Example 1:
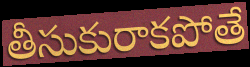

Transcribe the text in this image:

తీసుకురాకపోతే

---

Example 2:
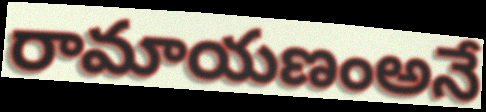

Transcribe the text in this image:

రామాయణంఅనే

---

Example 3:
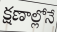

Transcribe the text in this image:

క్షణాల్లోనే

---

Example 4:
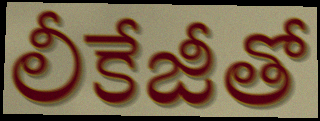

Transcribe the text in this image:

లీకేజీతో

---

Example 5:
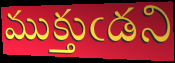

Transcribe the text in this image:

ముక్తుఁడని